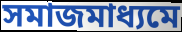
সমাজমাধ্যমে